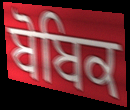
ਬੋਬਿਕ